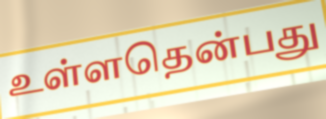
உள்ளதென்பது